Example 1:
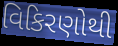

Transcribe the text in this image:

વિકિરણોથી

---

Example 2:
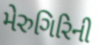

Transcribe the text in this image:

મેરુગિરિની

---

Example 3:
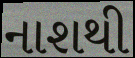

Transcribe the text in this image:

નાશથી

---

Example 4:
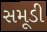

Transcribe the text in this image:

સમૂડી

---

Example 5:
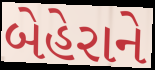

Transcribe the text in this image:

બેહેરાને